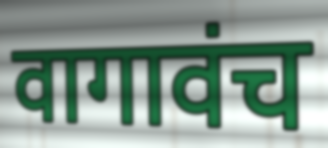
वागावंच